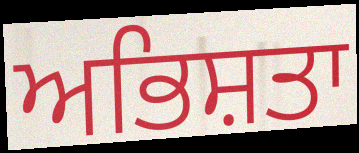
ਅਭਿਸ਼ਤਾ